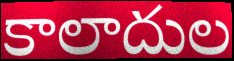
కాలాదుల